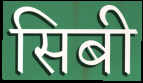
सिबी